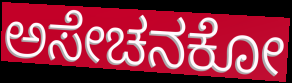
ಅಸೇಚನಕೋ